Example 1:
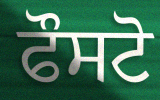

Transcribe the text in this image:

ਫੌਸਟੋ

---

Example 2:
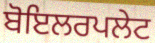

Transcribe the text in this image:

ਬੋਇਲਰਪਲੇਟ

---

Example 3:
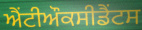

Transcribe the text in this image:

ਐਂਟੀਔਕਸੀਡੈਂਟਸ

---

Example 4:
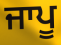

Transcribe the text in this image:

ਜਾਪੂ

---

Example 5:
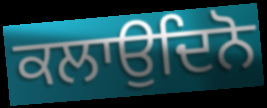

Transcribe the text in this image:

ਕਲਾਉਦਿਨੋ